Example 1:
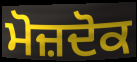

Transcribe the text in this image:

ਮੋਜ਼ਦੋਕ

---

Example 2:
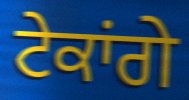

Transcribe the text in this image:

ਟੇਕਾਂਗੇ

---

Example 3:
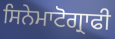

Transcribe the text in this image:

ਸਿਨੇਮਾਟੋਗ੍ਰਾਫੀ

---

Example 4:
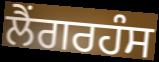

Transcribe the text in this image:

ਲੈਂਗਰਹੰਸ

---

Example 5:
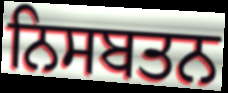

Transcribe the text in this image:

ਨਿਸਬਤਨ